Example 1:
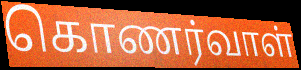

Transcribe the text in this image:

கொணர்வாள்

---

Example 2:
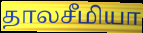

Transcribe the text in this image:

தாலசீமியா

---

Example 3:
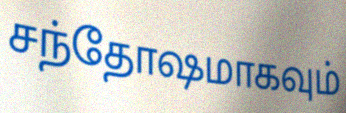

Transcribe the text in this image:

சந்தோஷமாகவும்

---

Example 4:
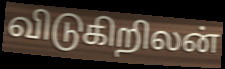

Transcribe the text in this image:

விடுகிறிலன்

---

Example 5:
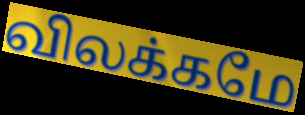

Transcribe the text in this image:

விலக்கமே